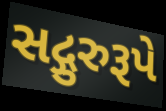
સદ્ગુરુરૂપે